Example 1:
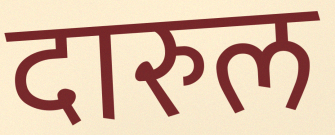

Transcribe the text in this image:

दारुल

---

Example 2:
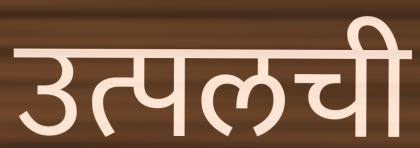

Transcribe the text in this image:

उत्पलची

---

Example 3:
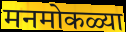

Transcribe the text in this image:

मनमोकळ्या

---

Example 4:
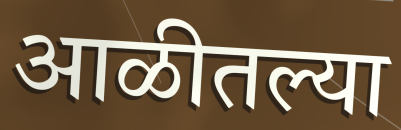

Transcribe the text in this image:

आळीतल्या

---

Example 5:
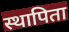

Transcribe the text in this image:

स्थापिता